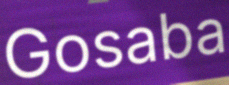
Gosaba